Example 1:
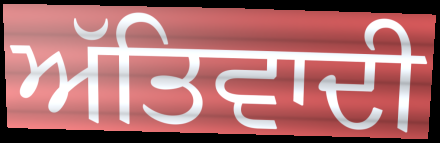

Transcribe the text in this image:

ਅੱਤਿਵਾਦੀ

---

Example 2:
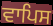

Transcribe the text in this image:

ਵਾਪਿਸ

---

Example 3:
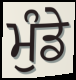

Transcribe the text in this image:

ਮੁੰਡੇ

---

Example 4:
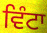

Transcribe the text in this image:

ਵਿੰਟਾ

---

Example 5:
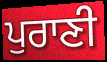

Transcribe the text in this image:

ਪੁਰਾਣੀ